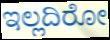
ಇಲ್ಲದಿರೋ